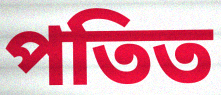
পতিত